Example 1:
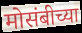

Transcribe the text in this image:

मोसंबीच्या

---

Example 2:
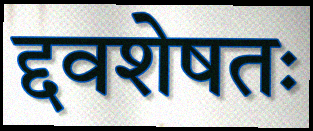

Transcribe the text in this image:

द्दवशेषतः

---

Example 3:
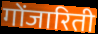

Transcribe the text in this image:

गोंजारिती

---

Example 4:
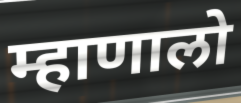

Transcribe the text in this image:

म्हाणालो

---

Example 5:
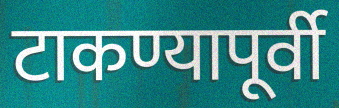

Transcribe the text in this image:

टाकण्यापूर्वी